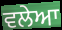
ਵਲੇਆ